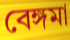
বেঙ্গমা